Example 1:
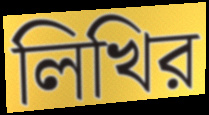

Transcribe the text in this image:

লিখির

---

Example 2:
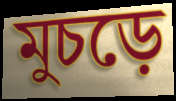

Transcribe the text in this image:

মুচড়ে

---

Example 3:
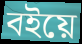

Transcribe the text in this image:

বইয়ে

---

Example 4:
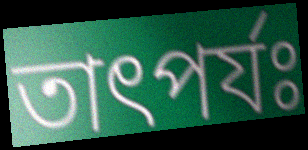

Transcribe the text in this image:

তাৎপর্যঃ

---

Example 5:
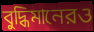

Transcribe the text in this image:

বুদ্ধিমানেরও